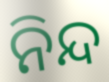
ନିନ୍ଦ